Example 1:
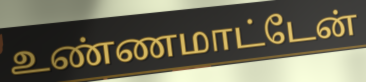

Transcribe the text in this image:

உண்ணமாட்டேன்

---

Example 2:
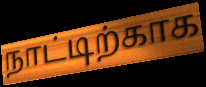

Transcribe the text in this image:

நாட்டிற்காக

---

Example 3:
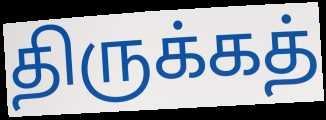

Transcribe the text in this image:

திருக்கத்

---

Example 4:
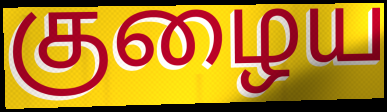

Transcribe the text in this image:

குழைய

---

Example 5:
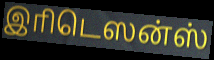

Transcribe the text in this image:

இரிடெஸன்ஸ்